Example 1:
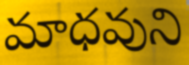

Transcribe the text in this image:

మాధవుని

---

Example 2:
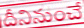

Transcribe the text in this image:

దీనినుంచే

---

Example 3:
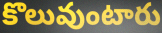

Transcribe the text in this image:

కొలువుంటారు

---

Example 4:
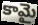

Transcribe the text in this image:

కామై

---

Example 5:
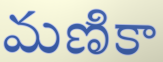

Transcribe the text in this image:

మణికా